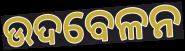
ଉଦବେଳନ